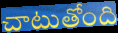
చాటుతోంది